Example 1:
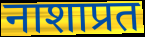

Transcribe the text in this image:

नाशाप्रत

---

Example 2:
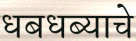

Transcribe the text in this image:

धबधब्याचे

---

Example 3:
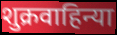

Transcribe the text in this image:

शुक्रवाहिन्या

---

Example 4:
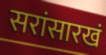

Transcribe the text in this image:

सरांसारखं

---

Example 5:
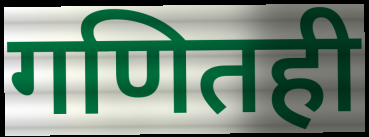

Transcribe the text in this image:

गणितही